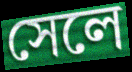
সেলে